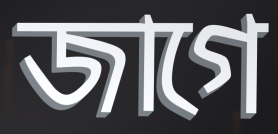
জাগে